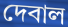
দেবাল